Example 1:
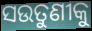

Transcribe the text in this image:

ସଉତୁଣୀକୁ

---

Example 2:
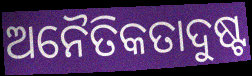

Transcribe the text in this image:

ଅନୈତିକତାଦୁଷ୍ଟ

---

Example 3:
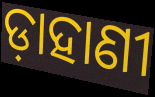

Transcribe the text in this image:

ଡ଼ାହାଣୀ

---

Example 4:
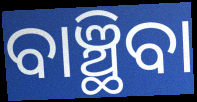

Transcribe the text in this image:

ବାଞ୍ଛିବା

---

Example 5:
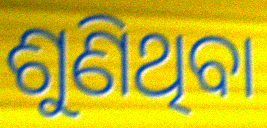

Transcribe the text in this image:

ଶୁଣିଥିବା